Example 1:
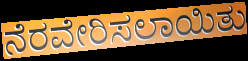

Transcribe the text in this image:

ನೆರವೇರಿಸಲಾಯಿತು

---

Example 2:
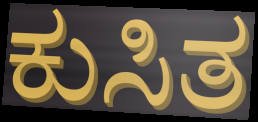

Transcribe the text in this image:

ಕುಸಿತ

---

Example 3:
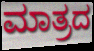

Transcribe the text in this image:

ಮಾತ್ರದ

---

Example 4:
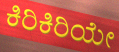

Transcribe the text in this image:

ಕಿರಿಕಿರಿಯೇ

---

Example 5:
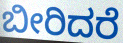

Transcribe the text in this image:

ಬೀರಿದರೆ